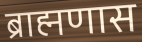
ब्राह्मणास